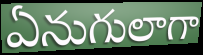
ఏనుగులాగా